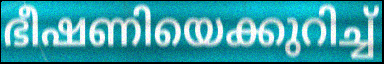
ഭീഷണിയെക്കുറിച്ച്